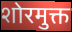
शोरमुक्त